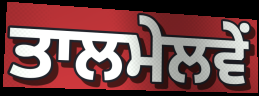
ਤਾਲਮੇਲਵੇਂ